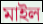
মাইল